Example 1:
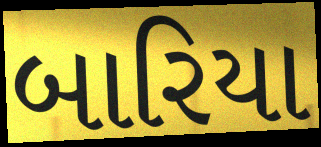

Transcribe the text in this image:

બારિયા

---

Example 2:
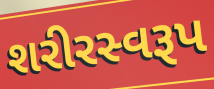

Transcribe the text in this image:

શરીરસ્વરૂપ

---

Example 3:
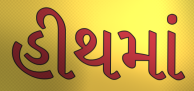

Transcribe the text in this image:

હીથમાં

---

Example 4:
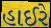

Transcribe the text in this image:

હાઈરે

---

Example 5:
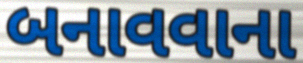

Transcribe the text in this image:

બનાવવાના